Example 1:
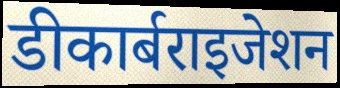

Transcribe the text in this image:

डीकार्बराइजेशन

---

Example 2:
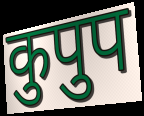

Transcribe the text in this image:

कुपुप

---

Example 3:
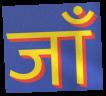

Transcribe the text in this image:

जाँ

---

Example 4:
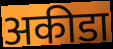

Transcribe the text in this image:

अकीडा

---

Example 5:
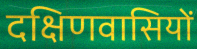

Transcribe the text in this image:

दक्षिणवासियों